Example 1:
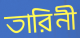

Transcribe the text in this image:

তারিনী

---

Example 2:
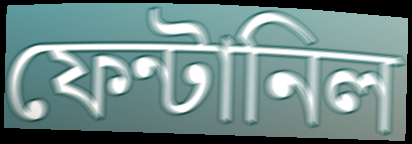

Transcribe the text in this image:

ফেন্টানিল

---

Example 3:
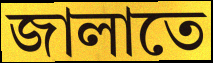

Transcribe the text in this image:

জালাতে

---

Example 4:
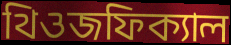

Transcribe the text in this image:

থিওজফিক্যাল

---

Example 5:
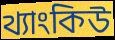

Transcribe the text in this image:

থ্যাংকিউ